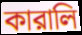
কারালি